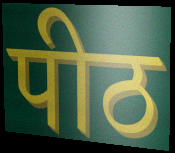
पीठ